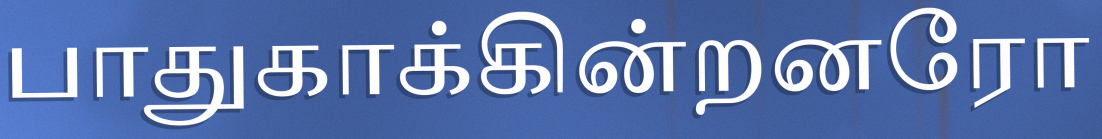
பாதுகாக்கின்றனரோ